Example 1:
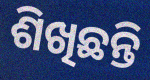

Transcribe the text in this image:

ଶିଖିଛନ୍ତି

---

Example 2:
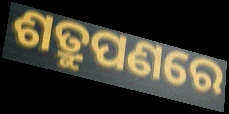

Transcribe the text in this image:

ଶତ୍ରୁପଣରେ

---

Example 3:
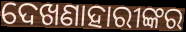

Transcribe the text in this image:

ଦେଖଣାହାରୀଙ୍କର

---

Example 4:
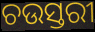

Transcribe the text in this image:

ଚଉସ୍ତରୀ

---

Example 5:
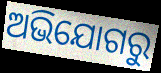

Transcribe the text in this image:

ଅଭିଯୋଗରୁ